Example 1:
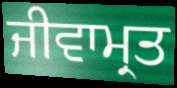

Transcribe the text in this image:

ਜੀਵਾਮ੍ਰਤ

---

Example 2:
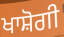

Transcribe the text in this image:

ਖਾਸ਼ੋਗੀ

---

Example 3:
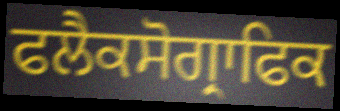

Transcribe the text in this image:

ਫਲੈਕਸੋਗ੍ਰਾਫਿਕ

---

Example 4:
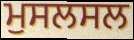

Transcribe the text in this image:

ਮੁਸਲਸਲ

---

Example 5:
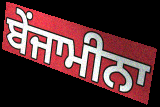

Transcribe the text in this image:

ਬੇਂਜਾਮੀਨਾ